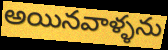
అయినవాళ్ళను